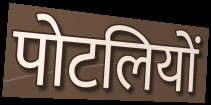
पोटलियों